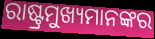
ରାଷ୍ଟ୍ରମୁଖ୍ୟମାନଙ୍କର